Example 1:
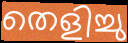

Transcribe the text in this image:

തെളിച്ചു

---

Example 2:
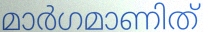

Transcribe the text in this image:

മാർഗമാണിത്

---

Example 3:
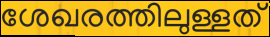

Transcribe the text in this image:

ശേഖരത്തിലുള്ളത്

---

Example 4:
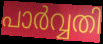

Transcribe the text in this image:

പാർവ്വതി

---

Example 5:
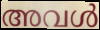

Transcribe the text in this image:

അവൾ